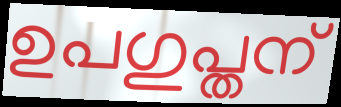
ഉപഗുപ്തന്